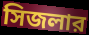
সিজলার